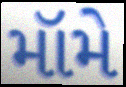
મૉમે